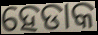
ହେଡାକ